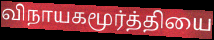
விநாயகமூர்த்தியை